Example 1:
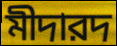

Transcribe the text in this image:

মীদারদ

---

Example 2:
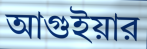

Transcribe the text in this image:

আগুইয়ার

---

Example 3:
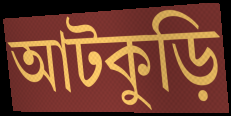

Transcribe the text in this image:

আটকুড়ি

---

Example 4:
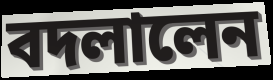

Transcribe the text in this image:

বদলালেন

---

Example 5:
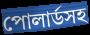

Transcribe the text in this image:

পোলার্ডসহ